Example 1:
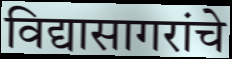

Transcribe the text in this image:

विद्यासागरांचे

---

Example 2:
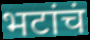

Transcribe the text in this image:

भटांचं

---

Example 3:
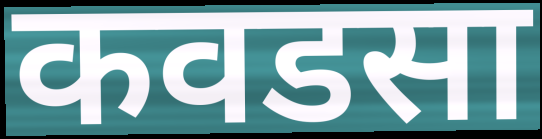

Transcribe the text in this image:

कवडसा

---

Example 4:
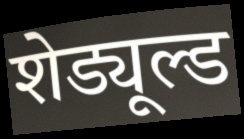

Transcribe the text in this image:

शेड्यूल्ड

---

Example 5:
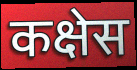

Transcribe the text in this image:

कक्षेस